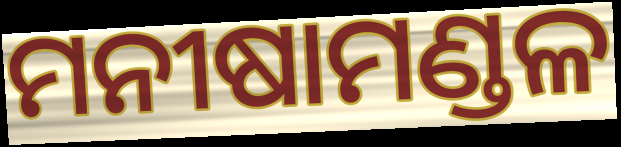
ମନୀଷାମଣ୍ଡଳ